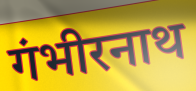
गंभीरनाथ